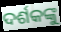
ଦର୍ଶକଙ୍କୁ